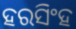
ହରସିଂହ